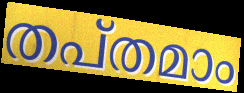
തപ്തമാം